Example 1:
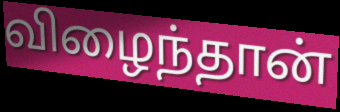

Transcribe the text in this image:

விழைந்தான்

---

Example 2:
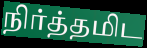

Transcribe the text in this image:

நிர்த்தமிட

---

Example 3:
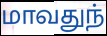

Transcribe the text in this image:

மாவதுந்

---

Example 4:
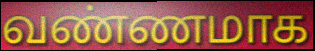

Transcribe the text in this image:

வண்ணமாக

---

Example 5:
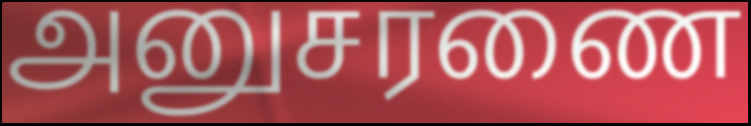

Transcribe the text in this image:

அனுசரணை